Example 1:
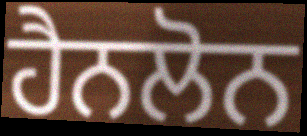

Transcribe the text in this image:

ਹੈਨਲੋਨ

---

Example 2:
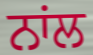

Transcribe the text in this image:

ਨਾਂਲ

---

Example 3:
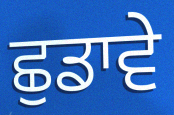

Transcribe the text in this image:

ਛੁਡਾਵੇ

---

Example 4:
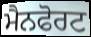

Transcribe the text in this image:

ਮੈਨਫੋਰਟ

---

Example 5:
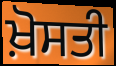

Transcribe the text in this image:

ਖ਼ੋਸਤੀ